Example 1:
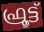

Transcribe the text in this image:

ഫ്രൂട്ട്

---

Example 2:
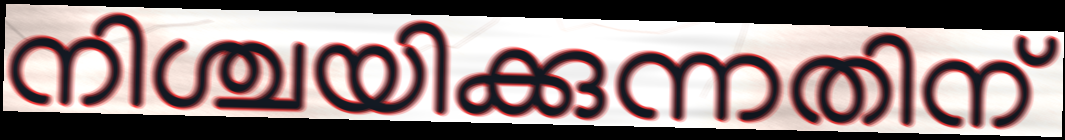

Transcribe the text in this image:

നിശ്ചയിക്കുന്നതിന്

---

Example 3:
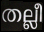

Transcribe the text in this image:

തല്ലീ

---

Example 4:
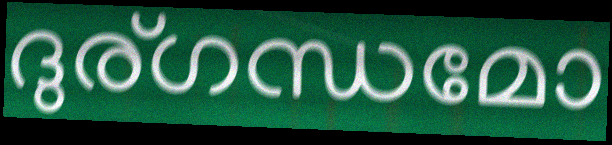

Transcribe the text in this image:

ദുര്ഗന്ധമോ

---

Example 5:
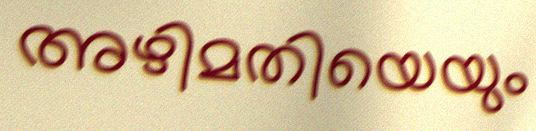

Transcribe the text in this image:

അഴിമതിയെയും